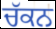
ਚੱਕਨ